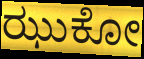
ಝುಕೋ